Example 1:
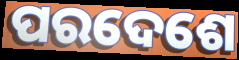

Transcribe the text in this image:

ପରଦେଶେ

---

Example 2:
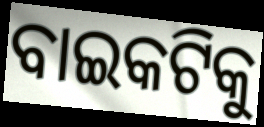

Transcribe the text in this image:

ବାଇକଟିକୁ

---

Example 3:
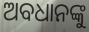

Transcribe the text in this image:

ଅବଧାନଙ୍କୁ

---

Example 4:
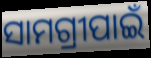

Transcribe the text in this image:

ସାମଗ୍ରୀପାଇଁ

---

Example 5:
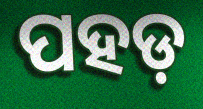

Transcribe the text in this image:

ପହଡ଼